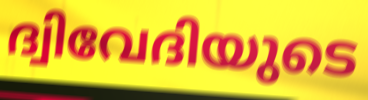
ദ്വിവേദിയുടെ